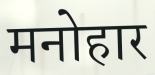
मनोहार